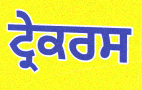
ਟ੍ਰੇਕਰਸ